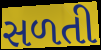
સળતી